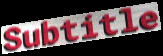
Subtitle